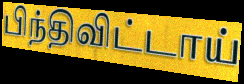
பிந்திவிட்டாய்